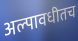
अल्पावधीतच